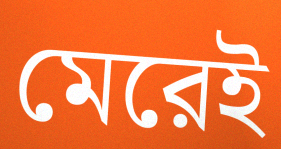
মেরেই